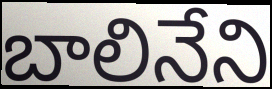
బాలినేని